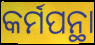
କର୍ମପନ୍ଥା